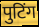
पुटिंग